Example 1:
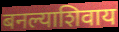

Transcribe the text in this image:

बनल्याशिवाय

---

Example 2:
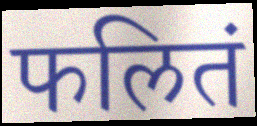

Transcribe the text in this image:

फलितं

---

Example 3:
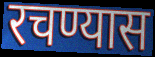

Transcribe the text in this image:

रचण्यास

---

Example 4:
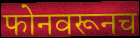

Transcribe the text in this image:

फोनवरूनच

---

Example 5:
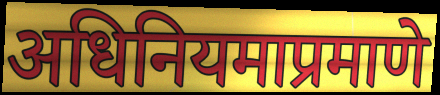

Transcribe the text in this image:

अधिनियमाप्रमाणे